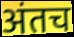
अंतच